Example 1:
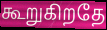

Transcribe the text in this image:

கூறுகிறதே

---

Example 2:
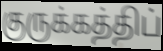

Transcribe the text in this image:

குருக்கத்திப்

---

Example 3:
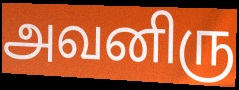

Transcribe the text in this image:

அவனிரு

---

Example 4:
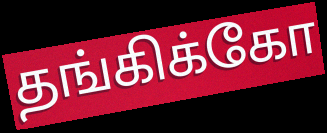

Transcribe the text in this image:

தங்கிக்கோ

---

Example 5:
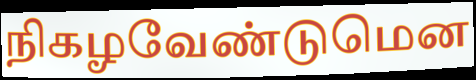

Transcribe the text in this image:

நிகழவேண்டுமென